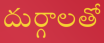
దుర్గాలతో